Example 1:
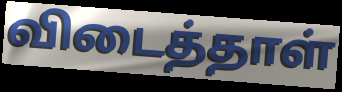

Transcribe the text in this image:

விடைத்தாள்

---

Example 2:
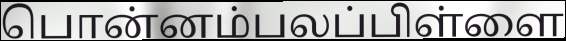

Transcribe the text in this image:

பொன்னம்பலப்பிள்ளை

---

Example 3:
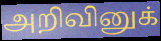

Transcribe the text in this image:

அறிவினுக்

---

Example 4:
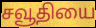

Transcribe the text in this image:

சவூதியை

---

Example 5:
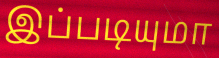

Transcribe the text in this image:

இப்படியுமா